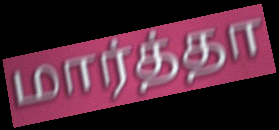
மார்த்தா